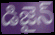
డిజైన్